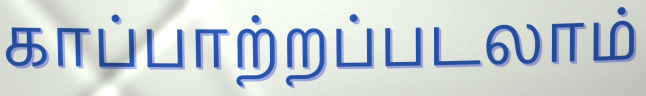
காப்பாற்றப்படலாம்